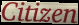
Citizen